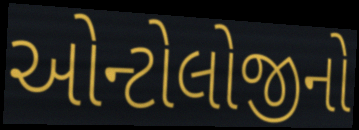
ઓન્ટોલોજીનો